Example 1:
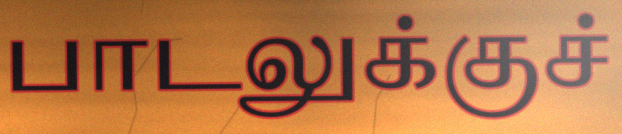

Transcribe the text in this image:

பாடலுக்குச்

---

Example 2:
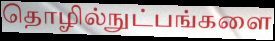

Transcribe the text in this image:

தொழில்நுட்பங்களை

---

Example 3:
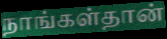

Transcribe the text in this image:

நாங்கள்தான்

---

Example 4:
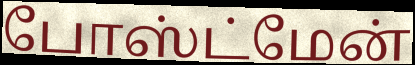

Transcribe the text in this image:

போஸ்ட்மேன்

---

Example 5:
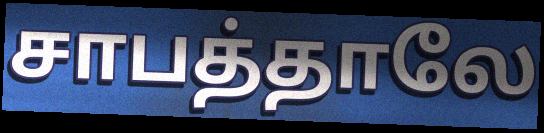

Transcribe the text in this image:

சாபத்தாலே